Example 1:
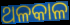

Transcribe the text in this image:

ଥଳକାଳ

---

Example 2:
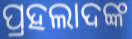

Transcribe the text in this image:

ପ୍ରହଲାଦଙ୍କ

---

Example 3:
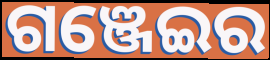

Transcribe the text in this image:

ଗଞ୍ଜେଇର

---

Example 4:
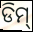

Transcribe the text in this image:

ଡିମ୍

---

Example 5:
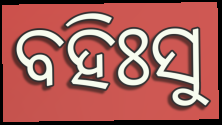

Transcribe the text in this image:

ବହିଃସୁ